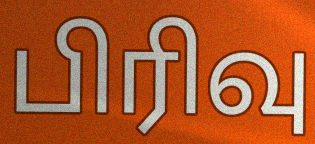
பிரிவு